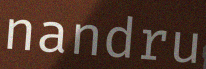
nandru